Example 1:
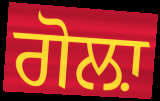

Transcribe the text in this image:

ਗੋਲ਼ਾ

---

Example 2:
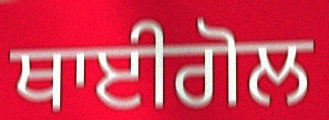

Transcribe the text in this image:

ਥਾਈਗੋਲ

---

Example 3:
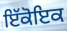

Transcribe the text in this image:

ਇੱਕੋਇਕ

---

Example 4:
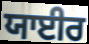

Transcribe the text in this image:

ਯਾਈਰ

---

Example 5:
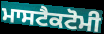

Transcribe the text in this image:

ਮਾਸਟੈਕਟੋਮੀ